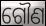
ଗୌଣ